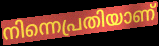
നിന്നെപ്രതിയാണ്